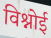
विश्नोई